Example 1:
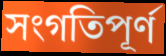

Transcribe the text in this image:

সংগতিপূর্ণ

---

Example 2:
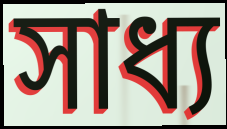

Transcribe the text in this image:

সাধ্য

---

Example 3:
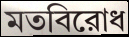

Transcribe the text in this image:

মতবিরোধ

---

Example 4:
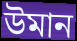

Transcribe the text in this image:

উমান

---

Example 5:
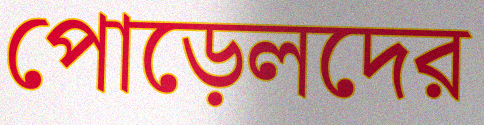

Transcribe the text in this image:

পোড়েলদের